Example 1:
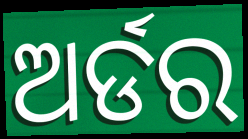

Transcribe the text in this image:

ଅର୍ଡର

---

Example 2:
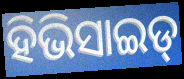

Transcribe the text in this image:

ହିଭିସାଇଡ୍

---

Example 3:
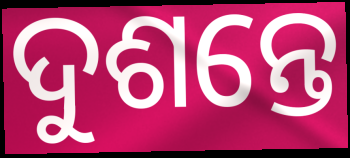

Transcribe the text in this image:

ଦୁଶନ୍ତେ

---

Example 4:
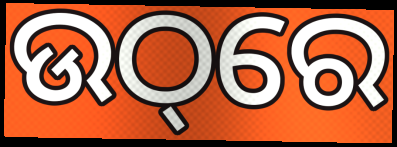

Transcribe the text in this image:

ଉଠ୍‌ରେ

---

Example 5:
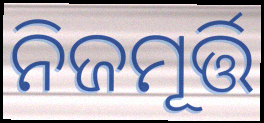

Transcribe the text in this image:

ନିଜମୂର୍ତ୍ତି